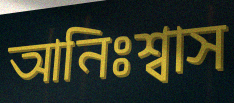
আনিঃশ্বাস